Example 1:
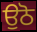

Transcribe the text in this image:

ਉਠੋ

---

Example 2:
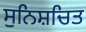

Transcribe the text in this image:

ਸੁਨਿਸ਼ਚਿਤ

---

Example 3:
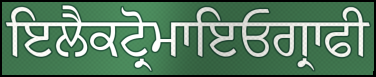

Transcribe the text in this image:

ਇਲੈਕਟ੍ਰੋਮਾਇਓਗ੍ਰਾਫੀ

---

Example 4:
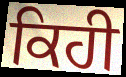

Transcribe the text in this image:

ਕਿਹੀ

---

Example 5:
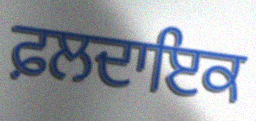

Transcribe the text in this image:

ਫ਼ਲਦਾਇਕ